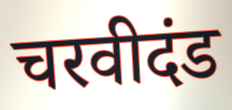
चरवीदंड